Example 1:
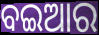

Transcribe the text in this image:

ବଇଆର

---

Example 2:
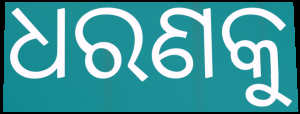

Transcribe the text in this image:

ଧରଣକୁ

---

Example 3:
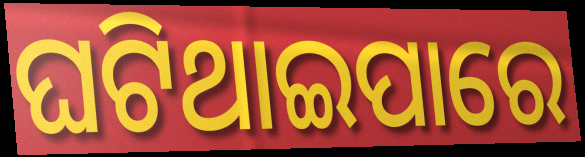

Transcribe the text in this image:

ଘଟିଥାଇପାରେ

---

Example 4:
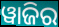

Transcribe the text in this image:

ୱାଜିର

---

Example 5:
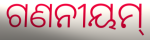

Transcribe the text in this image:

ଗଣନୀୟମ୍